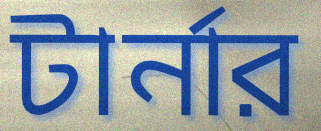
টার্নার